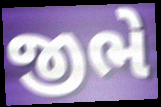
જીભે